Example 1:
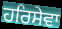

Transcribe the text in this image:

ਹਰਿਸੇਵਾ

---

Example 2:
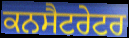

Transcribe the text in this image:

ਕਨਸੈਟਰੇਟਰ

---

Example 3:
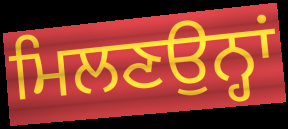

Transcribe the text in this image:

ਮਿਲਣਉਨ੍ਹਾਂ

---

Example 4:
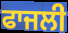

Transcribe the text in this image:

ਫਾਜਲੀ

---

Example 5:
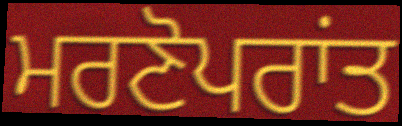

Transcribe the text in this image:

ਮਰਣੋਪਰਾਂਤ